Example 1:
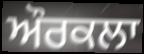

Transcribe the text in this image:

ਔਰਕਲਾ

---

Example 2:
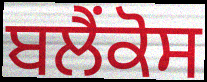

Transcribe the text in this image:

ਬਲੈਂਕੋਸ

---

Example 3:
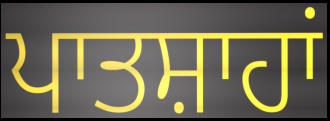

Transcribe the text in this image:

ਪਾਤਸ਼ਾਹਾਂ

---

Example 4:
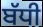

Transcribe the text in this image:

ਬੱਧੀ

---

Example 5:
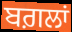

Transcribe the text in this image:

ਬਗ਼ਲਾਂ